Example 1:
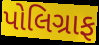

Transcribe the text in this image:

પોલિગ્રાફ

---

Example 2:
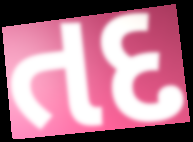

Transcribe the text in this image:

તદ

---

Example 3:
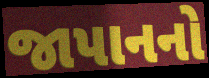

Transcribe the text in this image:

જાપાનનો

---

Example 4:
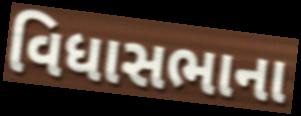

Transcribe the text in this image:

વિધાસભાના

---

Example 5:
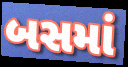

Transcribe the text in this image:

બસમાં